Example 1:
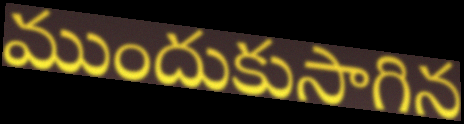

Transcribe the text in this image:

ముందుకుసాగిన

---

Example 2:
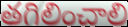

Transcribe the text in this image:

తగిలించాలి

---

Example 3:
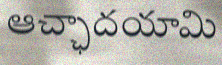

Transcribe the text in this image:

ఆచ్ఛాదయామి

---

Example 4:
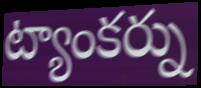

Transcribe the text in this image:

ట్యాంకర్ను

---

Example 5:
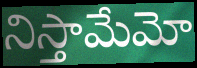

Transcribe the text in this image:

నిస్తామేమో